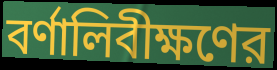
বর্ণালিবীক্ষণের